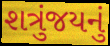
શત્રુંજયનું